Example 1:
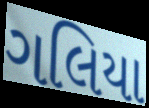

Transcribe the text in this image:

ગલિયા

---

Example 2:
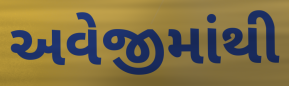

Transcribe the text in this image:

અવેજીમાંથી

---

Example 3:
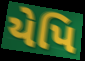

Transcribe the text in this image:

યેપિ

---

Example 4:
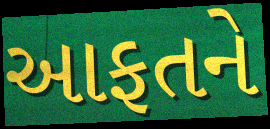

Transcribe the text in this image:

આફતને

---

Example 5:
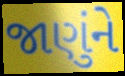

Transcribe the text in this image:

જાણુંને